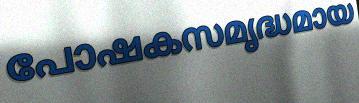
പോഷകസമൃദ്ധമായ